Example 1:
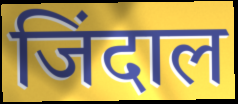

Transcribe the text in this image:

जिंदाल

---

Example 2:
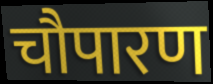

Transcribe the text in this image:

चौपारण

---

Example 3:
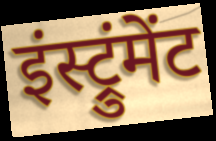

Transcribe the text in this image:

इंस्ट्रुंमेंट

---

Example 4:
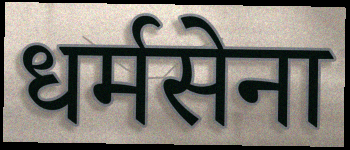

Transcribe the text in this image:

धर्मसेना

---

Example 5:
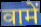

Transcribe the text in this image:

वामें